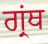
ਗ੍ਰਂਥ